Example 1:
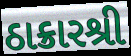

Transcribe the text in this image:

ઠાક્રારશ્રી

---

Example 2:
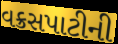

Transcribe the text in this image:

વક્રસપાટીની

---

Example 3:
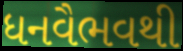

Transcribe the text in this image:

ધનવૈભવથી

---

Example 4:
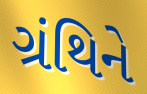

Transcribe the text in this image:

ગ્રંથિને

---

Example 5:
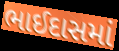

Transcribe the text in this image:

ભાઈદાસમાં